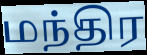
மந்திர